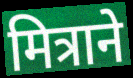
मित्राने